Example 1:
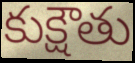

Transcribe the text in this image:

కుక్షౌతు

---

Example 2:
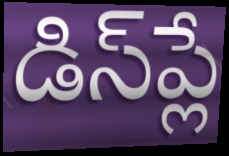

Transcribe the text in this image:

డిస్‌ప్లే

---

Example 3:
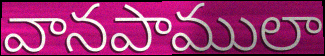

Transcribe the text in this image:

వానపాములా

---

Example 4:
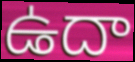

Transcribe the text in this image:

ఉదా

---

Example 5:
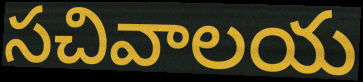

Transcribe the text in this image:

సచివాలయ